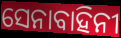
ସେନାବାହିନୀ